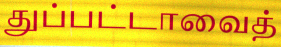
துப்பட்டாவைத்